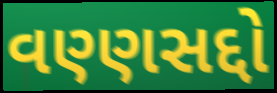
વણ્ણસદ્દો